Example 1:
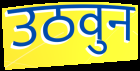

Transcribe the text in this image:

उठवुन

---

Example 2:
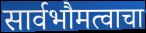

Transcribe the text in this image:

सार्वभौमत्वाचा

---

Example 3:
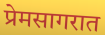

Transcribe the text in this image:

प्रेमसागरात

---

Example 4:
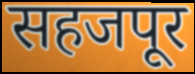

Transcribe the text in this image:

सहजपूर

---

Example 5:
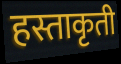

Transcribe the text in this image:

हस्ताकृती